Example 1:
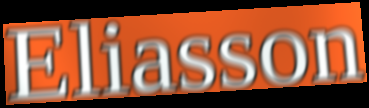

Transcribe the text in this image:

Eliasson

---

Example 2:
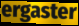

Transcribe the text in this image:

ergaster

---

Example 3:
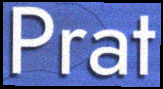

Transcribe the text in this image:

Prat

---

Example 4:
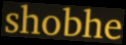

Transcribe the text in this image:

shobhe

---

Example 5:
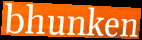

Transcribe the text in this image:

bhunken